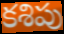
కశిపు